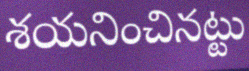
శయనించినట్టు